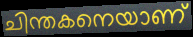
ചിന്തകനെയാണ്